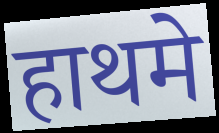
हाथमे